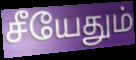
சீயேதும்